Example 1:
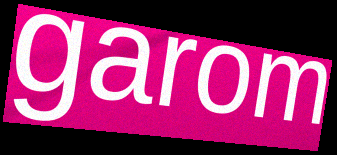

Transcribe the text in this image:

garom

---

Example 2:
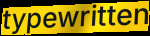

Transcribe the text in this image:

typewritten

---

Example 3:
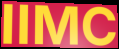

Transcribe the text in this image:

IIMC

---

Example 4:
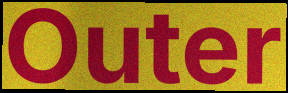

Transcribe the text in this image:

Outer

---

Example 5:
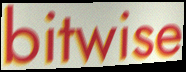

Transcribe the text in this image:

bitwise